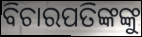
ବିଚାରପତିଙ୍କଙ୍କୁ